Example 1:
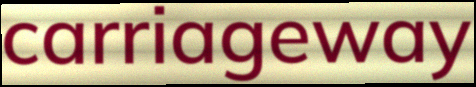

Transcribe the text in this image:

carriageway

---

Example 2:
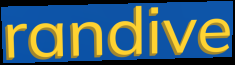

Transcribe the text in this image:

randive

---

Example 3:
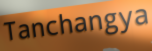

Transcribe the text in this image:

Tanchangya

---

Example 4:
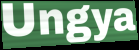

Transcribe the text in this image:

Ungya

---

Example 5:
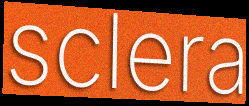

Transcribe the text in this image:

sclera